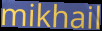
mikhail